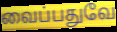
வைப்பதுவே